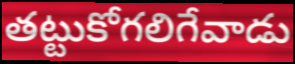
తట్టుకోగలిగేవాడు